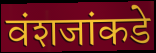
वंशजांकडे